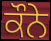
ਕੌਨੇ